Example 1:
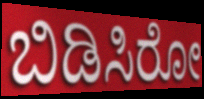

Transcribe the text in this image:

ಬಿಡಿಸಿರೋ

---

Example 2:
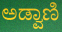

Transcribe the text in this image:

ಅಡ್ವಾಣಿ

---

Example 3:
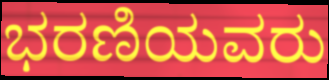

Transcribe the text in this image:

ಭರಣಿಯವರು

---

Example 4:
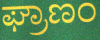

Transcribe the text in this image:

ಘ್ರಾಣಂ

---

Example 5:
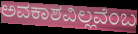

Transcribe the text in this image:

ಅವಕಾಶವಿಲ್ಲವೆಂಬ